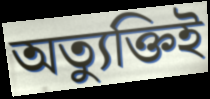
অত্যুক্তিই